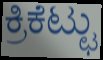
ಕ್ರಿಕೆಟ್ಟು